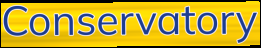
Conservatory